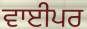
ਵਾਈਪਰ